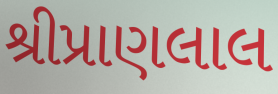
શ્રીપ્રાણલાલ